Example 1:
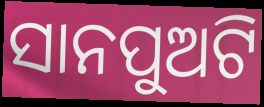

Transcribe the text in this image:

ସାନପୁଅଟି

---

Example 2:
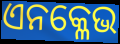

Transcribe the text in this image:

ଏନକ୍ଳେଭ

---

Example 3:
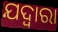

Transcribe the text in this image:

ଯଦ୍ୱାରା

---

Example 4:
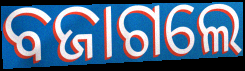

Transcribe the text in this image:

ବଜାଗଲେ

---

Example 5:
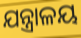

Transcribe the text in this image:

ଯନ୍ତ୍ରାଳୟ